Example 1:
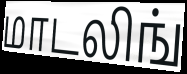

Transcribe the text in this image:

மாடலிங்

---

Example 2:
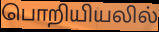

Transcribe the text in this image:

பொறியியலில்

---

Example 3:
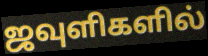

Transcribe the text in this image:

ஜவுளிகளில்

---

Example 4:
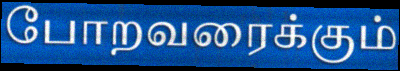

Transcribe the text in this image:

போறவரைக்கும்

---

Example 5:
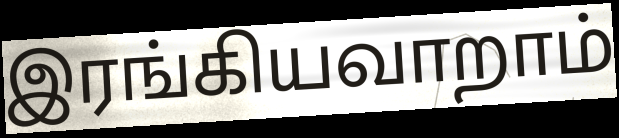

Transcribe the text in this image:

இரங்கியவாறாம்